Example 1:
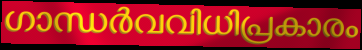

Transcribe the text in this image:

ഗാന്ധർവവിധിപ്രകാരം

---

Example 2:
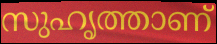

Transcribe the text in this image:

സുഹൃത്താണ്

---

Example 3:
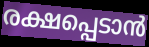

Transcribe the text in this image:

രക്ഷപ്പെടാൻ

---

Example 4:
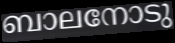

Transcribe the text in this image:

ബാലനോടു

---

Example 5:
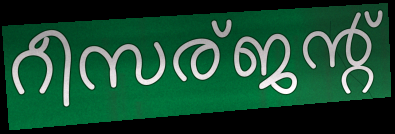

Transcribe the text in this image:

റീസര്ജന്റ്